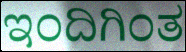
ಇಂದಿಗಿಂತ